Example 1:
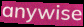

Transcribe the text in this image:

anywise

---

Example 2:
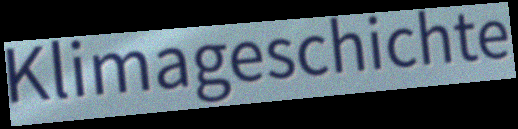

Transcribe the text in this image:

Klimageschichte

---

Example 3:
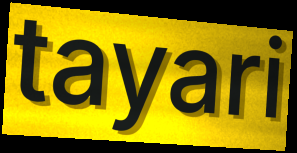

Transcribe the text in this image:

tayari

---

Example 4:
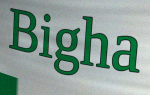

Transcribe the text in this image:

Bigha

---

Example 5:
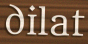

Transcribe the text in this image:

dilat